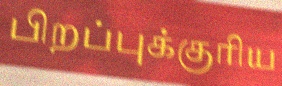
பிறப்புக்குரிய